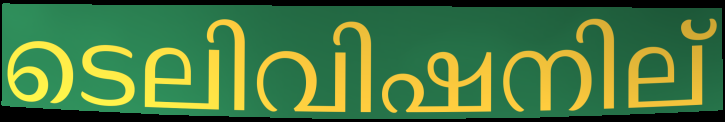
ടെലിവിഷനില്